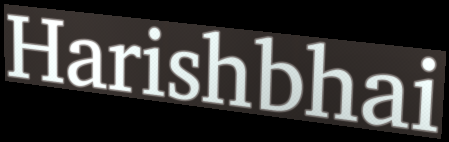
Harishbhai